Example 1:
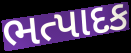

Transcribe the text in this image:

ભત્પાદક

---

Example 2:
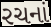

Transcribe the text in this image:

રચનાં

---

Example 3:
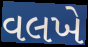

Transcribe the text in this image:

વલખે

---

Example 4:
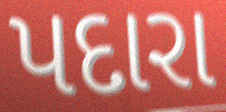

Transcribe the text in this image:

પદારા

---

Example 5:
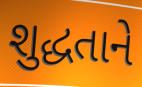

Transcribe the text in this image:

શુદ્ધતાને